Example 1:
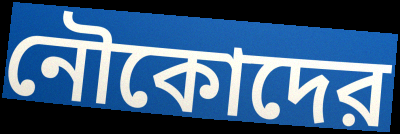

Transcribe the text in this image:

নৌকোদের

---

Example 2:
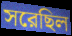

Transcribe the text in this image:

সরেছিল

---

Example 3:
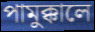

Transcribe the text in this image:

পামুক্কালে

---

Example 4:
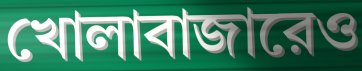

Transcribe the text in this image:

খোলাবাজারেও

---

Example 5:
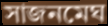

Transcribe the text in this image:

সাজনমেঘ